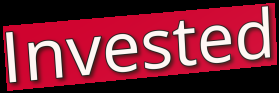
Invested